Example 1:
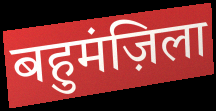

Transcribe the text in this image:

बहुमंज़िला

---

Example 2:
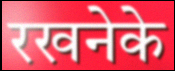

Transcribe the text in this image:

रखनेके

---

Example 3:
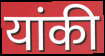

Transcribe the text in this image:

यांकी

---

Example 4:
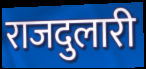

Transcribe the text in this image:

राजदुलारी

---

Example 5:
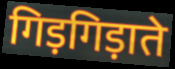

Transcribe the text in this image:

गिड़गिड़ाते